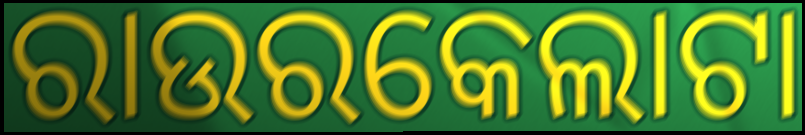
ରାଉରକେଲାଟା